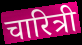
चारित्री